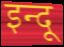
इन्दू